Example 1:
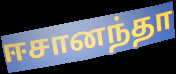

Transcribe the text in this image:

ஈசானந்தா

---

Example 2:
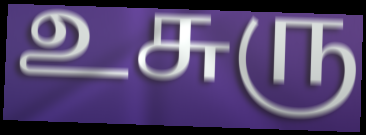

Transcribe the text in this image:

உசுரு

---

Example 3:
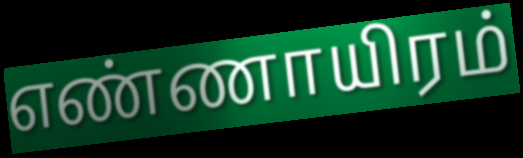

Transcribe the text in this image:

எண்ணாயிரம்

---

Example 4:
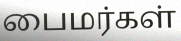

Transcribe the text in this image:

பைமர்கள்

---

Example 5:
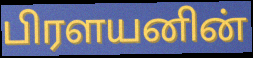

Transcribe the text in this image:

பிரளயனின்